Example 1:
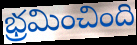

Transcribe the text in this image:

భ్రమించింది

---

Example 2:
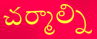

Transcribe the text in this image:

చర్మాల్ని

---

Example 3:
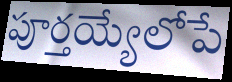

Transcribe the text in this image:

పూర్తయ్యేలోపే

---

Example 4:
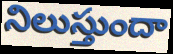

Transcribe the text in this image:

నిలుస్తుందా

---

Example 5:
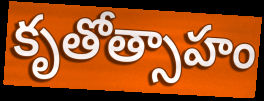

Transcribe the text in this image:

కృతోత్సాహం